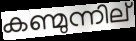
കണ്മുന്നില്